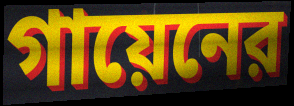
গায়েনের